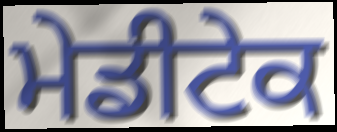
ਮੇਡੀਟੇਕ